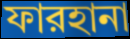
ফারহানা